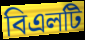
বিএলটি